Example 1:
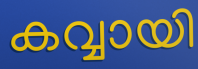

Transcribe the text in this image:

കവ്വായി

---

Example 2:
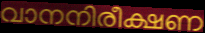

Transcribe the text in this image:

വാനനിരീക്ഷണ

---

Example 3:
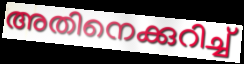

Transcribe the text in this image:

അതിനെക്കുറിച്ച്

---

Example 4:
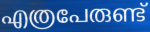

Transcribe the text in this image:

എത്രപേരുണ്ട്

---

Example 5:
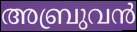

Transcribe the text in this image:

അബ്രുവൻ